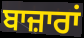
ਬਾਜ਼ਾਰਾਂ